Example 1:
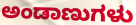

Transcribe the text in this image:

ಅಂಡಾಣುಗಳು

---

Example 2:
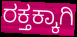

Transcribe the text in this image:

ರಕ್ತಕ್ಕಾಗಿ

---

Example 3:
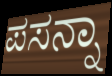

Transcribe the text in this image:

ಪಸನ್ನಾ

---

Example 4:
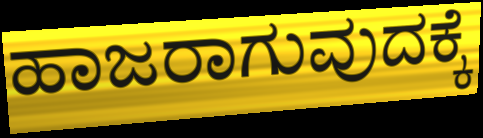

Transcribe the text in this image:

ಹಾಜರಾಗುವುದಕ್ಕೆ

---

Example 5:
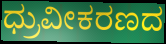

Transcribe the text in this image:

ಧ್ರುವೀಕರಣದ